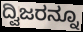
ದ್ವಿಜರನ್ನೂ